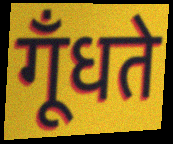
गूँधते